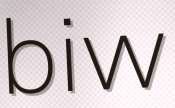
biw